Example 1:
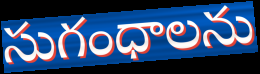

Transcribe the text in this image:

సుగంధాలను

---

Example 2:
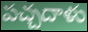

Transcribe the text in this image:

పచ్చదాళు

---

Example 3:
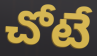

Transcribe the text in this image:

చోటే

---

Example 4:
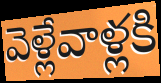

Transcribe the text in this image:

వెళ్లేవాళ్లకి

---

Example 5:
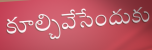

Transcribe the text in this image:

కూల్చివేసేందుకు